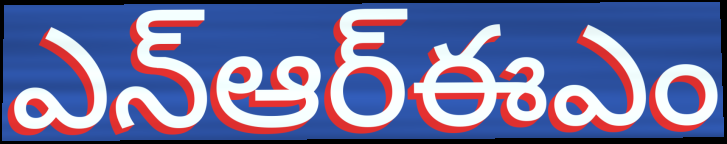
ఎన్ఆర్ఈఎం